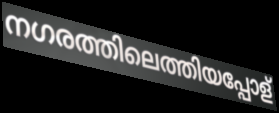
നഗരത്തിലെത്തിയപ്പോള്